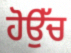
ਹੋਉੱਚ